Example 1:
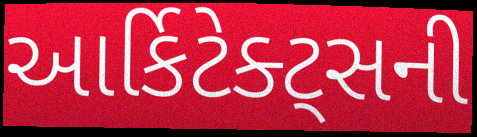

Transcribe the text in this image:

આર્કિટેક્ટ્સની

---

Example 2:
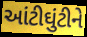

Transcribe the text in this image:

આંટીઘુંટીને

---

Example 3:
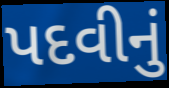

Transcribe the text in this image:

પદવીનું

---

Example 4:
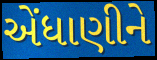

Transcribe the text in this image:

એંધાણીને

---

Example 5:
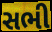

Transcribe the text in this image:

સભી